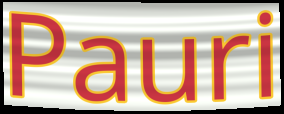
Pauri